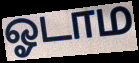
ஓடாம